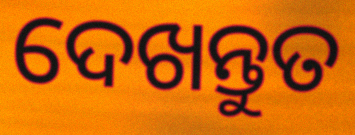
ଦେଖନ୍ତୁତ